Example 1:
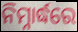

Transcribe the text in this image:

ନିମ୍ନାର୍ଦ୍ଧରେ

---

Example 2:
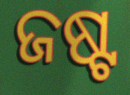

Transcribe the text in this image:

ଜଷ୍ଟ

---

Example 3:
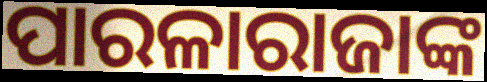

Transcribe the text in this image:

ପାରଳାରାଜାଙ୍କ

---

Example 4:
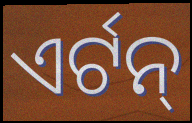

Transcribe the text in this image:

ଏର୍ଟନ୍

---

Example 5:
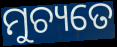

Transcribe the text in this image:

ମୁଚ୍ୟତେ